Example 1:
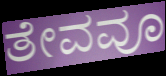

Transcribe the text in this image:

ತೇವವೂ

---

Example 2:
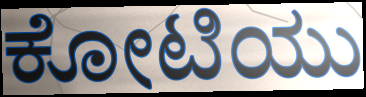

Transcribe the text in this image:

ಕೋಟಿಯು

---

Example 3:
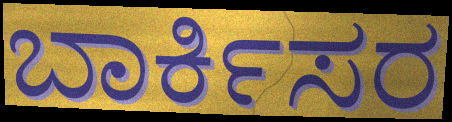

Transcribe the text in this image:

ಬಾರ್ಕಿಸರ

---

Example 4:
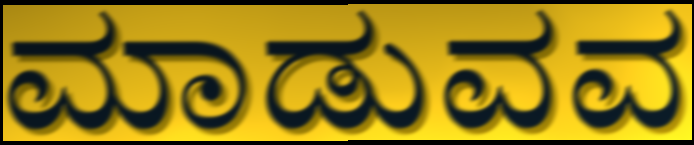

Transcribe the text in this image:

ಮಾಡುವವ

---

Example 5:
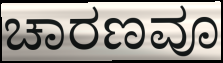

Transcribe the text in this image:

ಚಾರಣವೂ